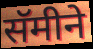
सॅमीने